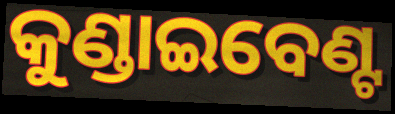
କୁଣ୍ଡାଇବେଣ୍ଟ